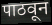
पाठवून